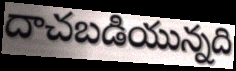
దాచబడియున్నది